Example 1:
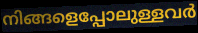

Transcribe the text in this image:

നിങ്ങളെപ്പോലുള്ളവർ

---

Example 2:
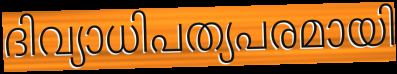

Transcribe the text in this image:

ദിവ്യാധിപത്യപരമായി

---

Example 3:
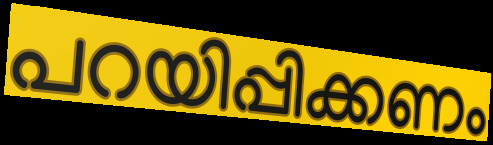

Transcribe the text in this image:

പറയിപ്പിക്കണം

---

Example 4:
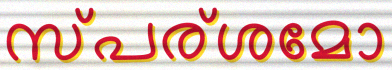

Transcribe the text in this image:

സ്പര്ശമോ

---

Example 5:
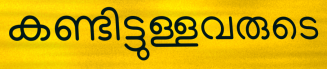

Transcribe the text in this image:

കണ്ടിട്ടുള്ളവരുടെ